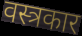
वस्त्रकार